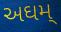
અઘમ્